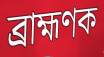
ব্ৰাহ্মণক